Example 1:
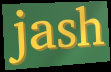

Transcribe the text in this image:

jash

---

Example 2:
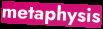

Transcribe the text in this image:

metaphysis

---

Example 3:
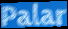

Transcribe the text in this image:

Palar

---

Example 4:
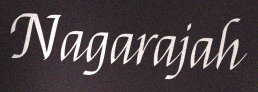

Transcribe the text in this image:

Nagarajah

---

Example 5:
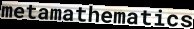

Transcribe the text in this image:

metamathematics